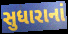
સુધારાનાં